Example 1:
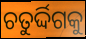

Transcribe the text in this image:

ଚତୁର୍ଦ୍ଦିଗକୁ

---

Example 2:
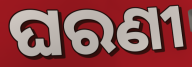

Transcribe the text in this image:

ଘରଣୀ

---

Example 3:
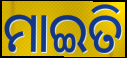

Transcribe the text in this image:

ମାଇତି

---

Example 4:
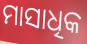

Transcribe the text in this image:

ମାସାଧିକ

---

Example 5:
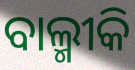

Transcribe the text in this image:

ବାଲ୍ମୀକି